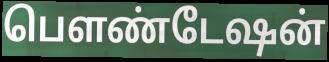
பௌண்டேஷன்